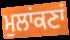
ਮੁਲਾਂਕਣਾਂ